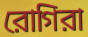
রোগিরা